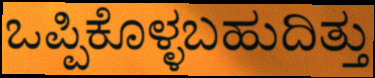
ಒಪ್ಪಿಕೊಳ್ಳಬಹುದಿತ್ತು